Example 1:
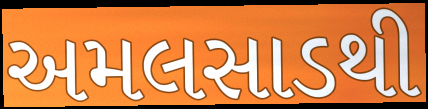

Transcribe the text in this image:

અમલસાડથી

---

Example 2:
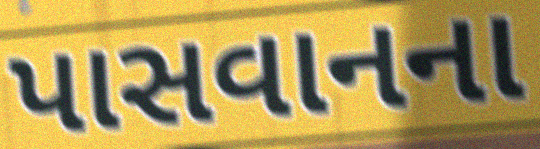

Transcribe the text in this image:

પાસવાનના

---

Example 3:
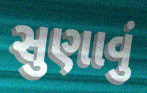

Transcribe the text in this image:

સુણાવું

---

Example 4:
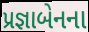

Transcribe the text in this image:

પ્રજ્ઞાબેનના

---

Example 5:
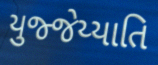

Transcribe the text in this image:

યુજ્જેય્યાતિ